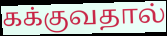
கக்குவதால்